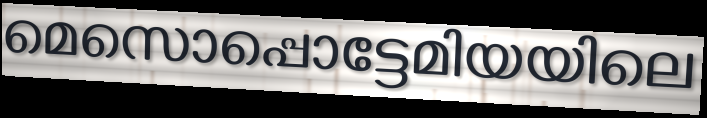
മെസൊപ്പൊട്ടേമിയയിലെ